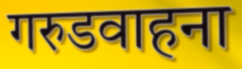
गरुडवाहना